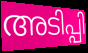
അടിപ്പി